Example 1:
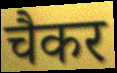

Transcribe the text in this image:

चैकर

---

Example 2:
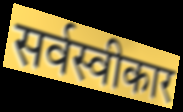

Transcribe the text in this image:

सर्वस्वीकार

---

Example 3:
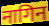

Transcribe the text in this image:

नागिन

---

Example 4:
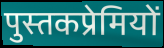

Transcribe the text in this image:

पुस्तकप्रेमियों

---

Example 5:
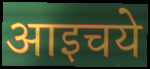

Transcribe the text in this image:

आइचये